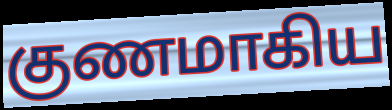
குணமாகிய